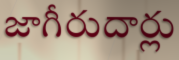
జాగీరుదార్లు